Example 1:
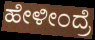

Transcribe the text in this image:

ಹೇಳೀಂದ್ರೆ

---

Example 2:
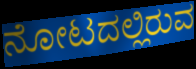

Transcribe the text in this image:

ನೋಟದಲ್ಲಿರುವ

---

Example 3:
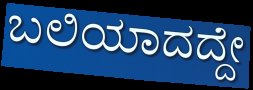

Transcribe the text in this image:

ಬಲಿಯಾದದ್ದೇ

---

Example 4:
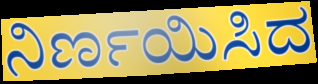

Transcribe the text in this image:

ನಿರ್ಣಯಿಸಿದ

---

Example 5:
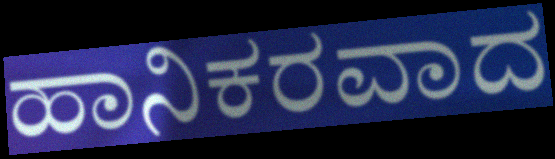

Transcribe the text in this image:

ಹಾನಿಕರವಾದ